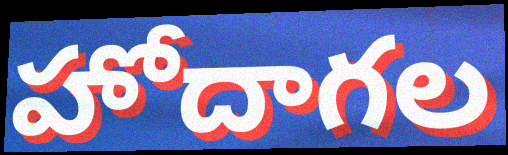
హోదాగల